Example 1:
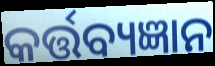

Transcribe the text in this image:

କର୍ତ୍ତବ୍ୟଜ୍ଞାନ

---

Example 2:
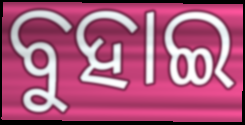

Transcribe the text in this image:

ବୁହାଇ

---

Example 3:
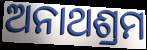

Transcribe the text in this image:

ଅନାଥଶ୍ରମ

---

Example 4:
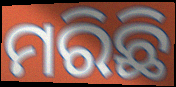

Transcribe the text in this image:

ମରିଛି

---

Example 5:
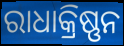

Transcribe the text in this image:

ରାଧାକ୍ରିଷ୍ଣନ